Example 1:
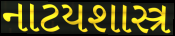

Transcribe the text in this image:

નાટયશાસ્ત્ર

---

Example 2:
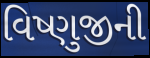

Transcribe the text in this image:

વિષ્ણુજીની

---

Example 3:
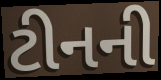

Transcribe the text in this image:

ટીનની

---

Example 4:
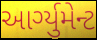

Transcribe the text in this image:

આર્ગ્યુમેન્ટ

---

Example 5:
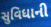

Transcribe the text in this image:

સુવિધાની